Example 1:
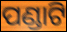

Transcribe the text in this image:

ପଣ୍ଡାଟି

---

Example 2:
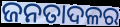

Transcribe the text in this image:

ଜନତାଦଳର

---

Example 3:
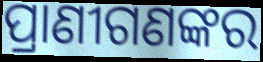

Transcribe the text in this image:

ପ୍ରାଣୀଗଣଙ୍କର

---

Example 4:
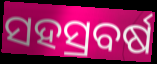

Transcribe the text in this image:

ସହସ୍ରବର୍ଷ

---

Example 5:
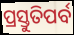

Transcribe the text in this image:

ପ୍ରସ୍ତୁତିପର୍ବ